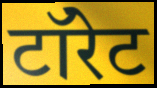
टॉरेट